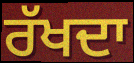
ਰੱਖਦਾ